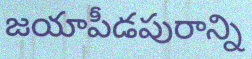
జయాపీడపురాన్ని